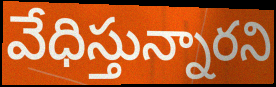
వేధిస్తున్నారని